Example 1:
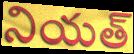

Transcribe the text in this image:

నియత్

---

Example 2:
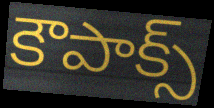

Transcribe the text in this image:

కౌపాక్స్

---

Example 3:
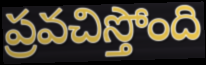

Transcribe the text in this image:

ప్రవచిస్తోంది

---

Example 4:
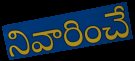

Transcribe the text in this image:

నివారించే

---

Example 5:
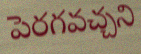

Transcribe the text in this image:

పెరగవచ్చని